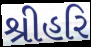
શ્રીહરિ